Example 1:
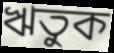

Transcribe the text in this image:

ঋতুক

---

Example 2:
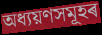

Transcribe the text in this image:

অধ্যয়ণসমূহৰ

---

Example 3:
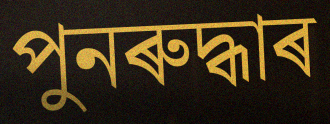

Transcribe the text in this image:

পুনৰুদ্ধাৰ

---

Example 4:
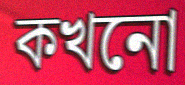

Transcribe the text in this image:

কখনো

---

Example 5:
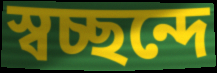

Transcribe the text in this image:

স্বচ্ছন্দে